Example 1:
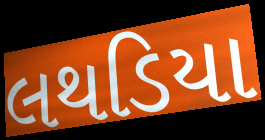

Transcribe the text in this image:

લથડિયા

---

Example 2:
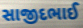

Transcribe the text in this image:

સાજીદભાઈ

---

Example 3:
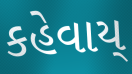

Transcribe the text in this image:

કહેવાય્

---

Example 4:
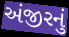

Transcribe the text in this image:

અંજીરનું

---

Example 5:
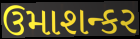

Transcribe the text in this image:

ઉમાશન્કર